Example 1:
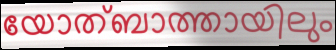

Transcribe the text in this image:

യോത്ബാത്തായിലും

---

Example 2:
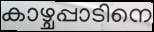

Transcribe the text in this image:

കാഴ്ചപ്പാടിനെ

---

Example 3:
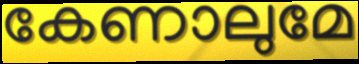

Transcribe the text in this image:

കേണാലുമേ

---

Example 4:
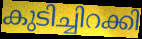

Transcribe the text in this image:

കുടിച്ചിറക്കി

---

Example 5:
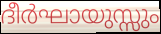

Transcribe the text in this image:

ദീർഘായുസ്സും